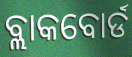
ବ୍ଲାକବୋର୍ଡ